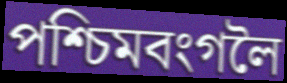
পশ্চিমবংগলৈ